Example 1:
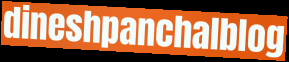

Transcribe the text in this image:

dineshpanchalblog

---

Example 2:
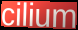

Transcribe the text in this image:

cilium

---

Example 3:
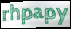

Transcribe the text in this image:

rhpapy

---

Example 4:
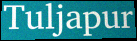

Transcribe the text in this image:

Tuljapur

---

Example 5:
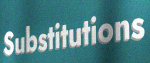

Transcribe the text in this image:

Substitutions